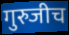
गुरुजीच